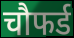
चौफर्ड